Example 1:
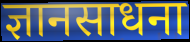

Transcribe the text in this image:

ज्ञानसाधना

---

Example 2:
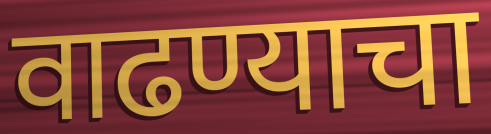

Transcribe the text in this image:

वाढण्याचा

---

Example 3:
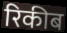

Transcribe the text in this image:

रिकीब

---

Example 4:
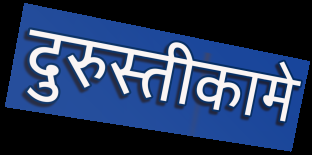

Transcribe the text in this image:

दुरुस्तीकामे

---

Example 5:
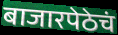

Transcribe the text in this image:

बाजारपेठेचं